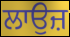
ਲਾਉਜ਼